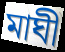
মাঘী